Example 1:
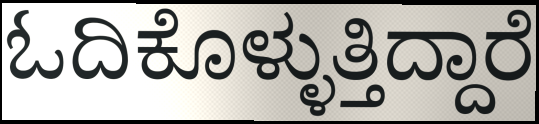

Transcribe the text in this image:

ಓದಿಕೊಳ್ಳುತ್ತಿದ್ದಾರೆ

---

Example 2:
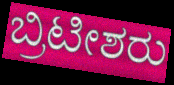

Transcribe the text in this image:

ಬ್ರಿಟೀಶರು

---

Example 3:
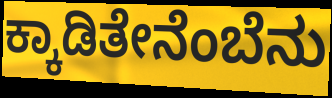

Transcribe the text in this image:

ಕ್ಕಾಡಿತೇನೆಂಬೆನು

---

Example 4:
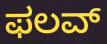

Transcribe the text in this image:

ಫಲವ್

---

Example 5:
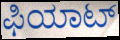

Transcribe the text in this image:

ಫಿಯಾಟ್